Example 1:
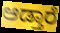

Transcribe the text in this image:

ಆಡ್ತಾರೆ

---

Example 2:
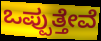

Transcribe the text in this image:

ಒಪ್ಪುತ್ತೇವೆ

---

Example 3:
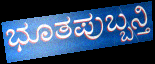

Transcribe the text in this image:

ಭೂತಪುಬ್ಬನ್ತಿ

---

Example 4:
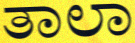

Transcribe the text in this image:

ತಾಲಾ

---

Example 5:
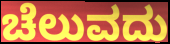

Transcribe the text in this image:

ಚೆಲುವದು